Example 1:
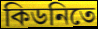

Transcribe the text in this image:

কিডনিতে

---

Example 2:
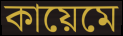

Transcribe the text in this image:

কায়েমে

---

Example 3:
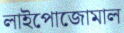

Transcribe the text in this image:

লাইপোজোমাল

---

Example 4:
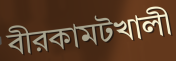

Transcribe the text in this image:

বীরকামটখালী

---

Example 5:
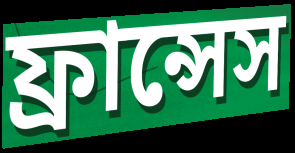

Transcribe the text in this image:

ফ্রান্সেস